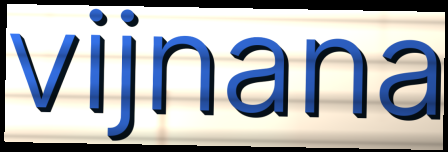
vijnana